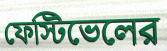
ফেস্টিভেলের